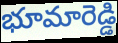
భూమారెడ్డి